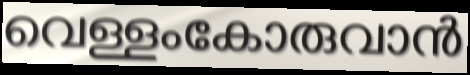
വെള്ളംകോരുവാൻ